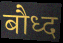
बौध्द